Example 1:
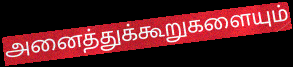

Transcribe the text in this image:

அனைத்துக்கூறுகளையும்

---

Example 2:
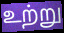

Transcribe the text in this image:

உற்று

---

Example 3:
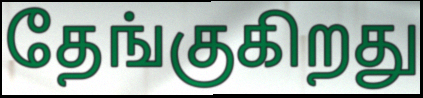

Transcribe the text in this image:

தேங்குகிறது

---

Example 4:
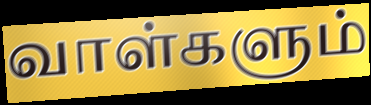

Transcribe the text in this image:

வாள்களும்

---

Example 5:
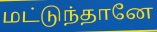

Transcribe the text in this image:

மட்டுந்தானே